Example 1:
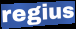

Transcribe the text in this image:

regius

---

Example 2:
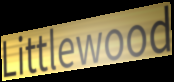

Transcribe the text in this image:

Littlewood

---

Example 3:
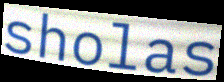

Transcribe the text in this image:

sholas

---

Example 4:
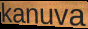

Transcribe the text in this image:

kanuva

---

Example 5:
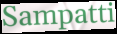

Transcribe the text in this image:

Sampatti